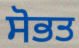
ਸੋਭਤ